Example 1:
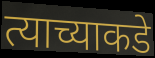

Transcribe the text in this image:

त्याच्याकडे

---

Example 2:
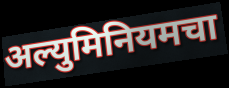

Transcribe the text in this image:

अल्युमिनियमचा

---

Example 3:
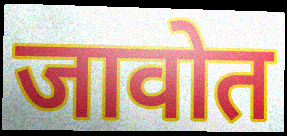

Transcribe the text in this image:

जावोत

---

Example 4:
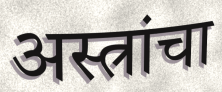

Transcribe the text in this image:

अस्त्रांचा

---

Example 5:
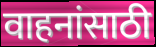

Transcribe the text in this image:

वाहनांसाठी